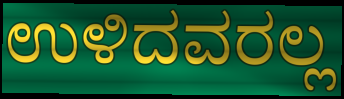
ಉಳಿದವರಲ್ಲ